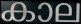
കാല